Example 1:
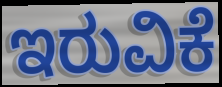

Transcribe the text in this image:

ಇರುವಿಕೆ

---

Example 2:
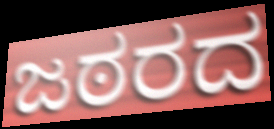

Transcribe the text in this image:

ಜಠರದ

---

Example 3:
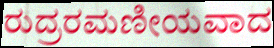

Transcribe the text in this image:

ರುದ್ರರಮಣೀಯವಾದ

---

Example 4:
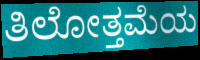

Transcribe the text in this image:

ತಿಲೋತ್ತಮೆಯ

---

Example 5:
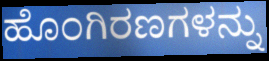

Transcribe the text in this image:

ಹೊಂಗಿರಣಗಳನ್ನು